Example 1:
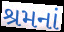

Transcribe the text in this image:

શ્રમનાં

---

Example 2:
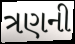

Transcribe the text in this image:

ત્રણની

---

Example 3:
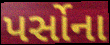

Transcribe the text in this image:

પર્સોના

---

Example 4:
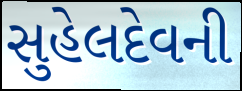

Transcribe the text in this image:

સુહેલદેવની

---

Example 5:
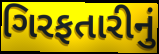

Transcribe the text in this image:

ગિરફતારીનું